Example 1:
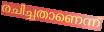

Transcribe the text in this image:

രചിച്ചതാണെന്ന്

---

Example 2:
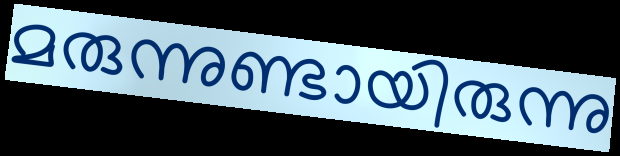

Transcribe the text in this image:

മരുന്നുണ്ടായിരുന്നു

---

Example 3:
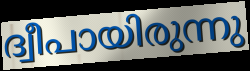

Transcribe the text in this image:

ദ്വീപായിരുന്നു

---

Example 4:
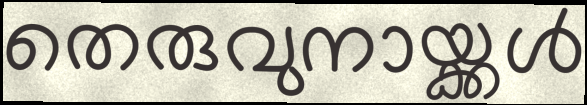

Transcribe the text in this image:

തെരുവുനായ്ക്കൾ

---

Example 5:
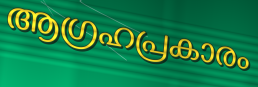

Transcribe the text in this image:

ആഗ്രഹപ്രകാരം